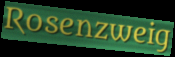
Rosenzweig